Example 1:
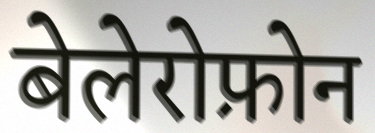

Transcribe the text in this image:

बेलेरोफ़ोन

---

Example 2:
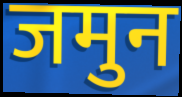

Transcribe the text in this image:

जमुन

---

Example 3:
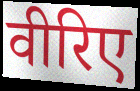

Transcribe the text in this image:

वीरिए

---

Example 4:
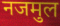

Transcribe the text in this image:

नजमुल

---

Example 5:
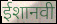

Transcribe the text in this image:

ईशानवी